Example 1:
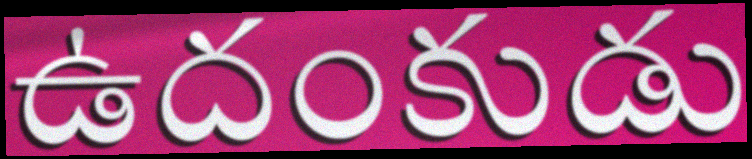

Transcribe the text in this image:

ఉదంకుడు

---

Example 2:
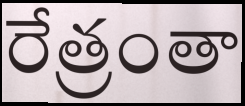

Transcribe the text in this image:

రేత్రంతా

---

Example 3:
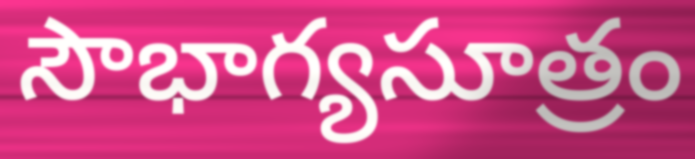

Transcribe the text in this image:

సౌభాగ్యసూత్రం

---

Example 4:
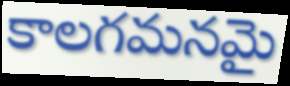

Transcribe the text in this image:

కాలగమనమై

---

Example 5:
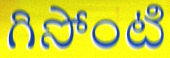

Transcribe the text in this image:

గిసోంటి